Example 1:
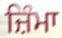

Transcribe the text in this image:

ਜ਼ਿੰਮਾ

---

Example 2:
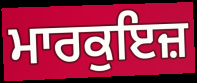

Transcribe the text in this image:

ਮਾਰਕੁਇਜ਼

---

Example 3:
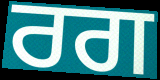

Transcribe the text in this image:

ਰਗ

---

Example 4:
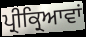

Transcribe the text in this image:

ਪ੍ਰੀਕ੍ਰਿਆਵਾਂ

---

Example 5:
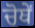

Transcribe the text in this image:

ਚੋਥੇਂ